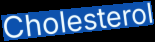
Cholesterol